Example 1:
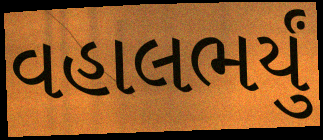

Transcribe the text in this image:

વહાલભર્યું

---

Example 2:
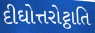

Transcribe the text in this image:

દીઘોત્તરોટ્ઠાતિ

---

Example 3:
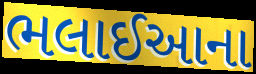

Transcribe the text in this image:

ભલાઈઆના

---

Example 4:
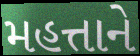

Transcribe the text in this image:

મહત્તાને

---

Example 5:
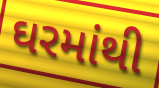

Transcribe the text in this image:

ઘરમાંથી